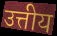
उत्तीय